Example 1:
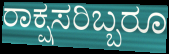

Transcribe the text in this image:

ರಾಕ್ಷಸರಿಬ್ಬರೂ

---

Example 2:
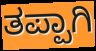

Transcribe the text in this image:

ತಪ್ಪಾಗಿ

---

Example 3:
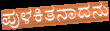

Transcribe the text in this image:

ಪುಳಕಿತನಾದನು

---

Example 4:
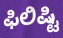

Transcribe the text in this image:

ಫಿಲಿಷ್ಟಿ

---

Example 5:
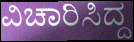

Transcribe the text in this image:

ವಿಚಾರಿಸಿದ್ದ